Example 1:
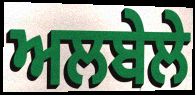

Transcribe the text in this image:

ਅਲਬੇਲੇ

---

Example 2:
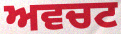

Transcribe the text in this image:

ਅਵਚਟ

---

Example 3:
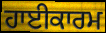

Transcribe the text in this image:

ਹਾਈਕਾਰਮ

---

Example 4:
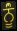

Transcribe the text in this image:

ਨੂਂੰ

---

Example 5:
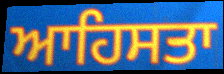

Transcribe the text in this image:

ਆਹਿਸਤਾ